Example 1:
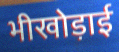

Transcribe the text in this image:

भीखोड़ाई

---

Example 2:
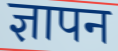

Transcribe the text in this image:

ज्ञापन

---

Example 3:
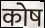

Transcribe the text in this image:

कोष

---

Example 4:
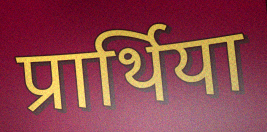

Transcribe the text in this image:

प्रार्थिया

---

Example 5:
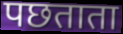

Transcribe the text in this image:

पछताता